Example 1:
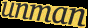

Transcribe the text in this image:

unman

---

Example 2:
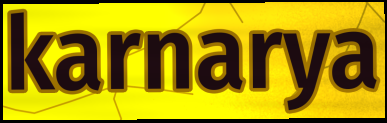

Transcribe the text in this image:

karnarya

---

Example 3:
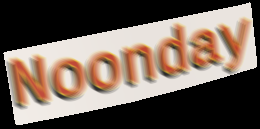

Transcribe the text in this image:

Noonday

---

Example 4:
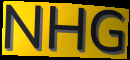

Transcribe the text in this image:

NHG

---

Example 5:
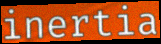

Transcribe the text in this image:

inertia